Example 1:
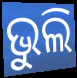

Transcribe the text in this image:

ଭୁଲି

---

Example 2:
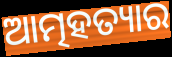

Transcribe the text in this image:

ଆତ୍ମହତ୍ୟାର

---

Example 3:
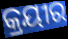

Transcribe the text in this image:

କ୍ରୟୀର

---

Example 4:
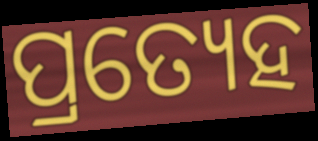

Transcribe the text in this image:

ପ୍ରତ୍ୟେହ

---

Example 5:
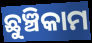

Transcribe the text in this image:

ଛୁଞ୍ଚିକାମ